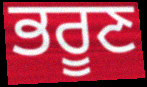
ਭਰੂਣ